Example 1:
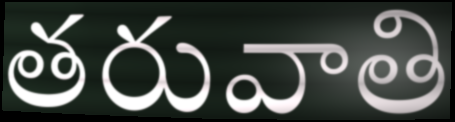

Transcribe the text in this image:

తరువాతి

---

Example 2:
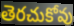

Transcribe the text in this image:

తెరచుకోవు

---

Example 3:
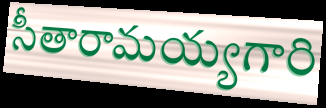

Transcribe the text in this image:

సీతారామయ్యగారి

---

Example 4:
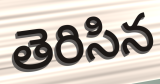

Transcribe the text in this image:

తెరిసిన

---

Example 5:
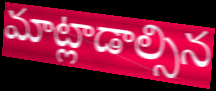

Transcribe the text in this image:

మాట్లాడాల్సిన